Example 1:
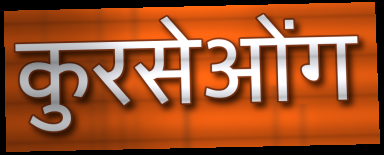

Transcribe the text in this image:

कुरसेओंग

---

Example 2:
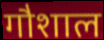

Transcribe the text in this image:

गौशाल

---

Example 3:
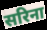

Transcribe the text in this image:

सरिना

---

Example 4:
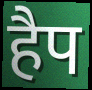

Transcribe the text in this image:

हैप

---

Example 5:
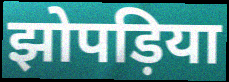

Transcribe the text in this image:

झोपड़िया